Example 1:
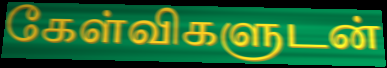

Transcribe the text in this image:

கேள்விகளுடன்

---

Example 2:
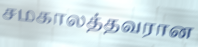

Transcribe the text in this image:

சமகாலத்தவரான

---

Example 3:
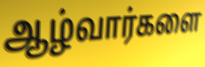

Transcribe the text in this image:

ஆழ்வார்களை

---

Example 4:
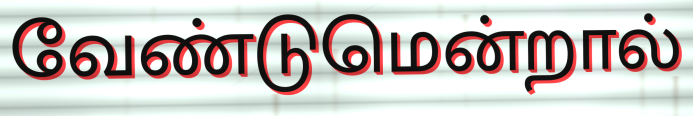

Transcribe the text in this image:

வேண்டுமென்றால்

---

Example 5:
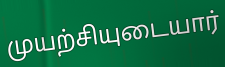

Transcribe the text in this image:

முயற்சியுடையார்